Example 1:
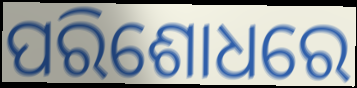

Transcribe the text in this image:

ପରିଶୋଧରେ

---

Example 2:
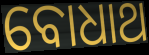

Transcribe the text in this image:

ବୋଧାଥ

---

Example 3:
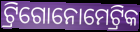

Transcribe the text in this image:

ଟ୍ରିଗୋନୋମେଟ୍ରିକ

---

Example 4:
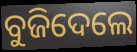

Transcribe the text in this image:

ବୁଜିଦେଲେ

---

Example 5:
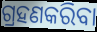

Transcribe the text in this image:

ଗ୍ରହଣକରିବା